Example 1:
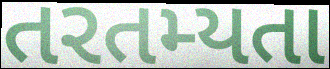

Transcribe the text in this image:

તરતમ્યતા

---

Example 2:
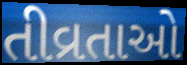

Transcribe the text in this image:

તીવ્રતાઓ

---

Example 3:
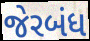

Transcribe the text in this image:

જેરબંધ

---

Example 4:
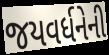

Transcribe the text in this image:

જયવર્ધનેની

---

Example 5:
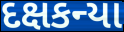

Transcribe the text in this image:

દક્ષકન્યા